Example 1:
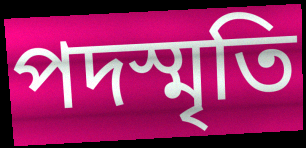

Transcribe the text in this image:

পদস্মৃতি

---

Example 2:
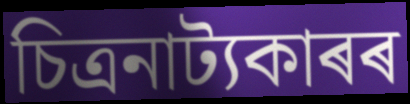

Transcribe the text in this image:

চিত্ৰনাট্যকাৰৰ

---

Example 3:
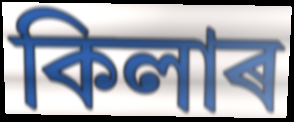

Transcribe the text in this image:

কিলাৰ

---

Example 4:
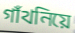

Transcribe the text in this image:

গাঁথনিয়ে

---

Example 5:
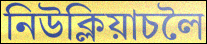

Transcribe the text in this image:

নিউক্লিয়াচলৈ